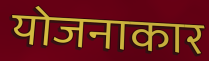
योजनाकार